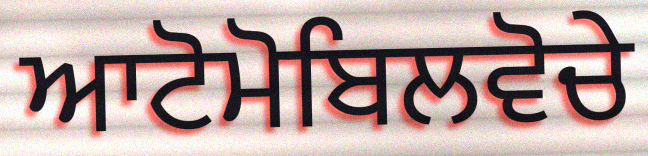
ਆਟੋਮੋਬਿਲਵੋਚੇ